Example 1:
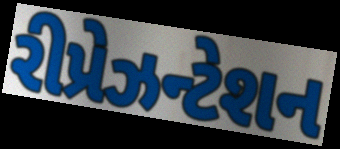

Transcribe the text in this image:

રીપ્રેઝન્ટેશન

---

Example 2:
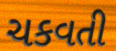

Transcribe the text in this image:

ચકવતી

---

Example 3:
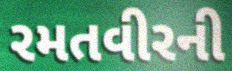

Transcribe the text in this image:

રમતવીરની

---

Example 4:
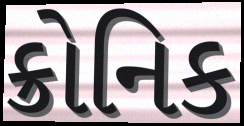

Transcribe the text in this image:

ક્રોનિક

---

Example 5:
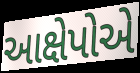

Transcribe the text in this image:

આક્ષેપોએ